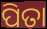
ପିତା